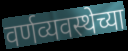
वर्णव्यवस्थेच्या